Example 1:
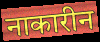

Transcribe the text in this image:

नाकारीन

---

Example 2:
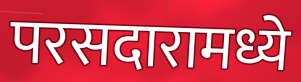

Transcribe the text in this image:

परसदारामध्ये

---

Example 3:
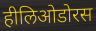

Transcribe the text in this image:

हीलिओडोरस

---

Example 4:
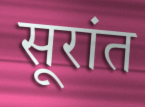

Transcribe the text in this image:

सूरांत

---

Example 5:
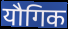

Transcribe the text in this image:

यौगिक